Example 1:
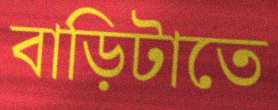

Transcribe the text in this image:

বাড়িটাতে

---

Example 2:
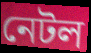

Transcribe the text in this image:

নেটল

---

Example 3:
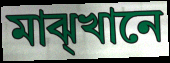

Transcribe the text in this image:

মাঝ্খানে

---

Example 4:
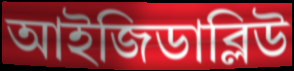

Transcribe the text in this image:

আইজিডাব্লিউ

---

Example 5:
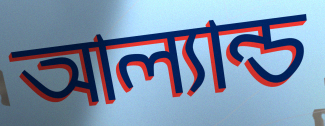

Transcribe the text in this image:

আল্যান্ড